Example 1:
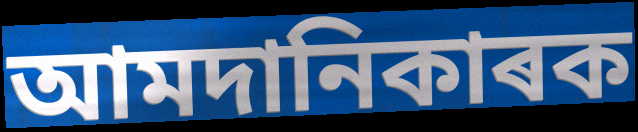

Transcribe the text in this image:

আমদানিকাৰক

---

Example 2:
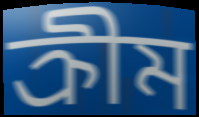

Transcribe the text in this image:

ক্ৰীম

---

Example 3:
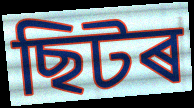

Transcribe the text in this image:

ছিটৰ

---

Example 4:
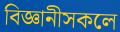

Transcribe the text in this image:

বিজ্ঞানীসকলে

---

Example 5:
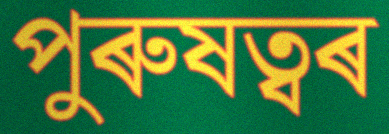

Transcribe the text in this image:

পুৰুষত্বৰ